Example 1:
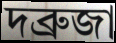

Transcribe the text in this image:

দব্রুজা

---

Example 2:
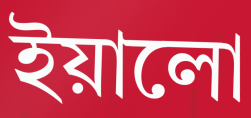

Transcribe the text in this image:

ইয়ালো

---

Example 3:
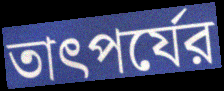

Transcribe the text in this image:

তাৎপর্যের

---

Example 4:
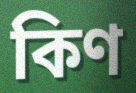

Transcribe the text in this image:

কিণ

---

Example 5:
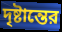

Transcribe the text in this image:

দৃষ্টান্তের